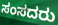
ಸಂಸದರು